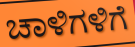
ಚಾಳಿಗಳಿಗೆ